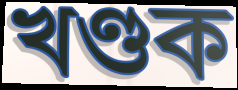
খণ্ডক